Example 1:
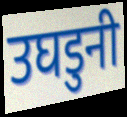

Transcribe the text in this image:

उघडुनी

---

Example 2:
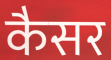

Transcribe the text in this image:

कैसर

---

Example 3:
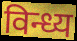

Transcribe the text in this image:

विन्ध्य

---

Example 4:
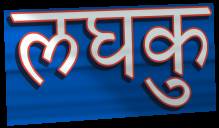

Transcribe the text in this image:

लघकु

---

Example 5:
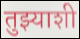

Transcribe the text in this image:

तुझ्याशी